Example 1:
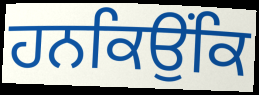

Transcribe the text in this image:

ਹਨਕਿਉਂਕਿ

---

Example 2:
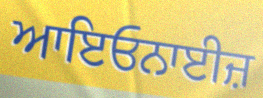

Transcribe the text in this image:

ਆਇਓਨਾਈਜ਼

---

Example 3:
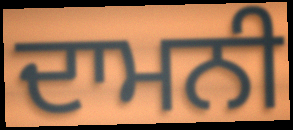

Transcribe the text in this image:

ਦਾਮਨੀ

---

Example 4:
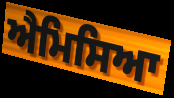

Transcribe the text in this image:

ਐਮਿਸਿਆ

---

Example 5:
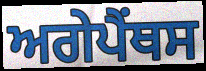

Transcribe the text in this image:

ਅਗੇਪੈਂਥਸ